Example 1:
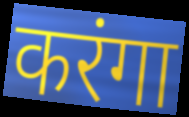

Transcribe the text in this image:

करंगा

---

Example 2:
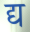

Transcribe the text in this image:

द्य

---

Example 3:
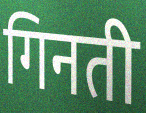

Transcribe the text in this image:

गिनती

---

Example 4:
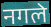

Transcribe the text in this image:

नगले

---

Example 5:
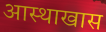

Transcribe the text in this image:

आस्थाखास